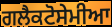
ਗਲੈਕਟੋਸੇਮੀਆ